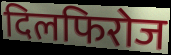
दिलफिरोज